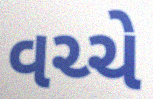
વચ્ચે